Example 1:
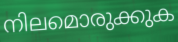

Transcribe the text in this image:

നിലമൊരുക്കുക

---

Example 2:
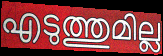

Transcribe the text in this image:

എടുത്തുമില്ല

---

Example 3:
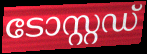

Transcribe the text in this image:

ടോസ്റ്റഡ്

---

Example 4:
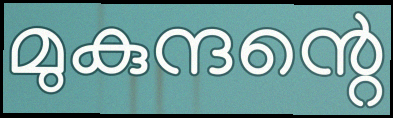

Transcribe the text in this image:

മുകുന്ദന്റെ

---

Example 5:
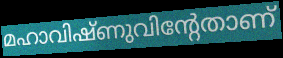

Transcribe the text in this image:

മഹാവിഷ്ണുവിന്റേതാണ്